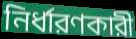
নির্ধারণকারী